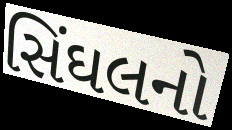
સિંઘલનો